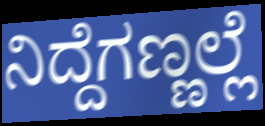
ನಿದ್ದೆಗಣ್ಣಲ್ಲೆ